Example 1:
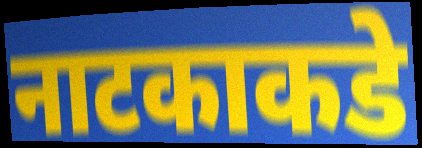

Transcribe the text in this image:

नाटकाकडे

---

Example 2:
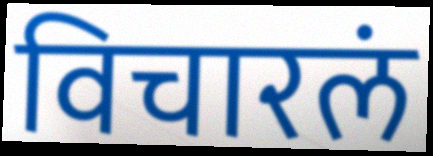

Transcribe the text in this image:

विचारलं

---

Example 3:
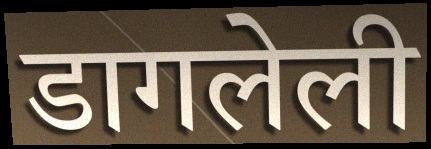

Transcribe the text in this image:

डागलेली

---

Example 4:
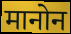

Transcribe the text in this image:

मानोन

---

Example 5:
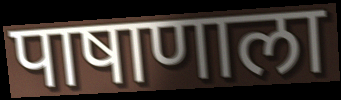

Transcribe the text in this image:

पाषाणाला